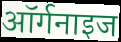
ऑर्गनाइज